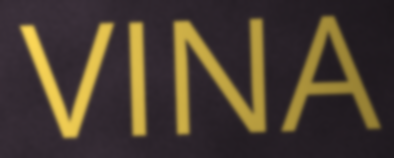
VINA